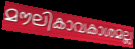
മൗലികാവകാശമല്ല